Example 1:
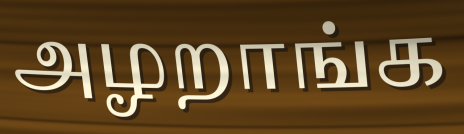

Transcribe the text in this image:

அழறாங்க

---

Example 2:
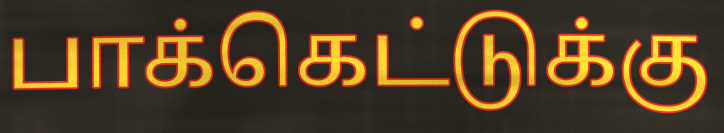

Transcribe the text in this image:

பாக்கெட்டுக்கு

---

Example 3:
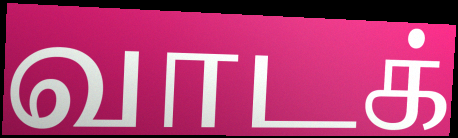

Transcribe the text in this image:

வாடக்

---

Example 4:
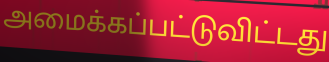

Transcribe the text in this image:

அமைக்கப்பட்டுவிட்டது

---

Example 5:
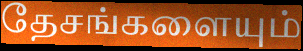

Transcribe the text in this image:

தேசங்களையும்